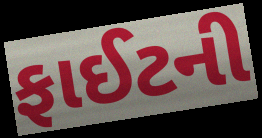
ફાઈટની